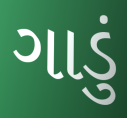
ગાડું